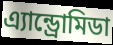
এ্যান্ড্রোমিডা